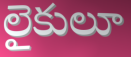
లైకులూ